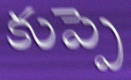
కుప్పె